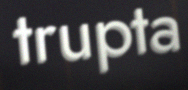
trupta